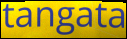
tangata